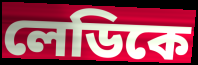
লেডিকে